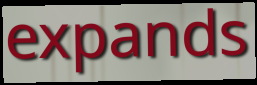
expands